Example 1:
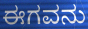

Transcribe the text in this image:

ಈಗವನು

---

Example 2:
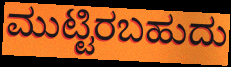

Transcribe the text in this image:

ಮುಟ್ಟಿರಬಹುದು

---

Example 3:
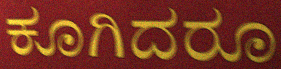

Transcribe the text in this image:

ಕೂಗಿದರೂ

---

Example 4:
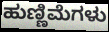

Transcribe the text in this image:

ಹುಣ್ಣಿಮೆಗಳು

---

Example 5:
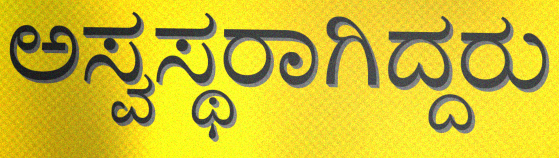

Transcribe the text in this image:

ಅಸ್ವಸ್ಥರಾಗಿದ್ದರು